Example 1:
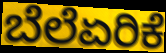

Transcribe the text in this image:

ಬೆಲೆಏರಿಕೆ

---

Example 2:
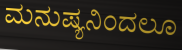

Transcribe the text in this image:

ಮನುಷ್ಯನಿಂದಲೂ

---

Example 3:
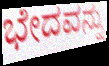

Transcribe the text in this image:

ಭೇದವನ್ನು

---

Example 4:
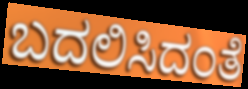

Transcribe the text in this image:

ಬದಲಿಸಿದಂತೆ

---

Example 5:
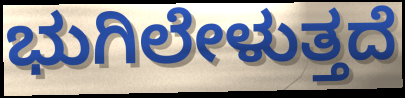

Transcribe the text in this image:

ಭುಗಿಲೇಳುತ್ತದೆ